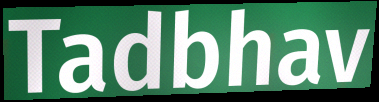
Tadbhav